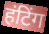
हंटिंग